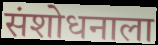
संशोधनाला